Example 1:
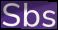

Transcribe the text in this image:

Sbs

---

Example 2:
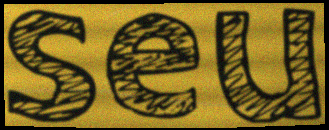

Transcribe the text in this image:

seu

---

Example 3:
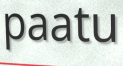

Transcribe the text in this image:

paatu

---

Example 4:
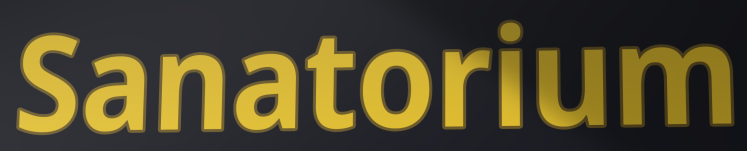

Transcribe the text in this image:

Sanatorium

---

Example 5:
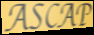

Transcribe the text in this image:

ASCAP